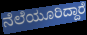
ನೆಲೆಯೂರಿದ್ದಾರೆ